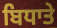
ਬਿਧਾਤੇ